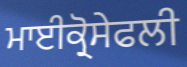
ਮਾਈਕ੍ਰੋਸੇਫਲੀ